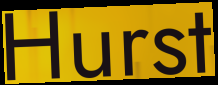
Hurst